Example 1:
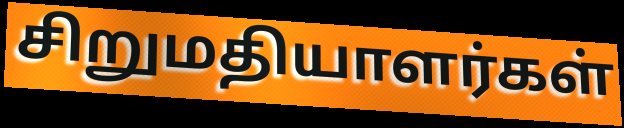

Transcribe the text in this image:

சிறுமதியாளர்கள்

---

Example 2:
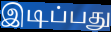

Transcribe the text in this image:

இடிப்பது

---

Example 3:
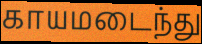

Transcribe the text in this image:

காயமடைந்து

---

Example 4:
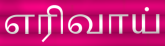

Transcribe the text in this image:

எரிவாய்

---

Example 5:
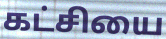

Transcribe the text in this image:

கட்சியை